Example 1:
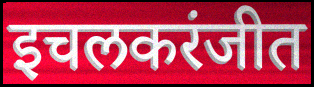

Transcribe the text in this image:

इचलकरंजीत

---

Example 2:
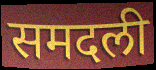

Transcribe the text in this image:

समदली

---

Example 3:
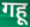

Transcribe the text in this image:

गहू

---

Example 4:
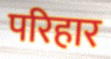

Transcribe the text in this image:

परिहार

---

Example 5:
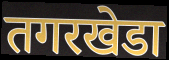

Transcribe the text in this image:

तगरखेडा